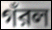
গঁরল